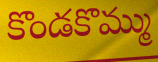
కొండకొమ్ము